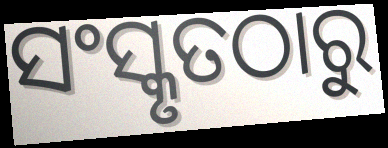
ସଂସ୍କୃତଠାରୁ